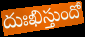
దుఃఖిస్తుందో